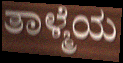
ತಾಳ್ಮೆಯ